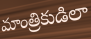
మాంత్రికుడిలా